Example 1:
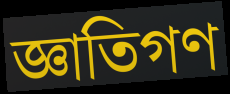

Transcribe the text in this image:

জ্ঞাতিগণ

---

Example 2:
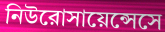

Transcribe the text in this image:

নিউরোসায়েন্সেসে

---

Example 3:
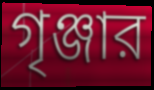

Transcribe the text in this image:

গৃঞ্জার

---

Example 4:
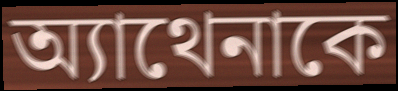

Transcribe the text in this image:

অ্যাথেনাকে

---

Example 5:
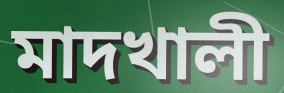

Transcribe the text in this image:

মাদখালী